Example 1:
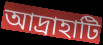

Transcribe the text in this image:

আদ্রাহাটি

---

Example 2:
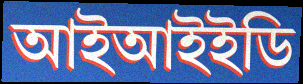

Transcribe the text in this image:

আইআইইডি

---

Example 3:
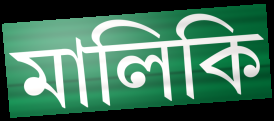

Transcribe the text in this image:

মালিকি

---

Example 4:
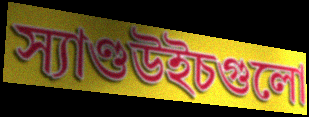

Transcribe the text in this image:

স্যাণ্ডউইচগুলো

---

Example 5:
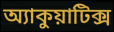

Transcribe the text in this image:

অ্যাকুয়াটিক্স